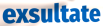
exsultate